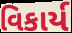
વિકાર્ય